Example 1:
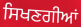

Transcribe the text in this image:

ਸਿਖਣਗੀਆਂ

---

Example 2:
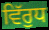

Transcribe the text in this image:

ਵਿੱਰੁਧ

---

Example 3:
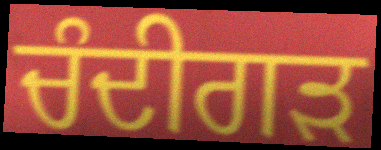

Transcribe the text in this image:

ਚੰਦੀਗੜ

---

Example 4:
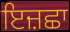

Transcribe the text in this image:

ਇਜ਼ਛਾ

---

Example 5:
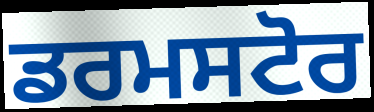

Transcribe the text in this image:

ਡਰਮਸਟੋਰ